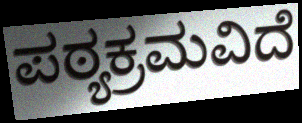
ಪಠ್ಯಕ್ರಮವಿದೆ